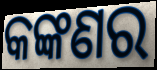
କଙ୍କଣର